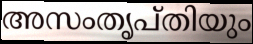
അസംതൃപ്തിയും